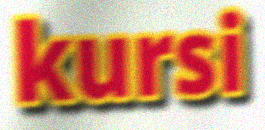
kursi